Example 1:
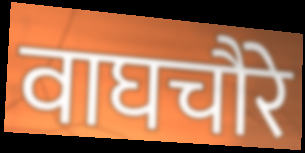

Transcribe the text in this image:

वाघचौरे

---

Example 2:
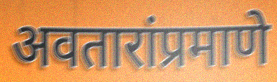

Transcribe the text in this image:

अवतारांप्रमाणे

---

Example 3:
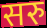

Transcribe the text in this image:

सरु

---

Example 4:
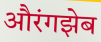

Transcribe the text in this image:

औरंगझेब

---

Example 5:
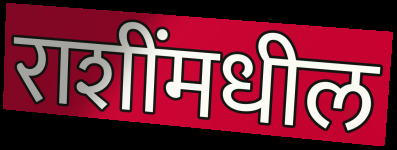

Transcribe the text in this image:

राशींमधील